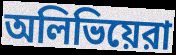
অলিভিয়েরা